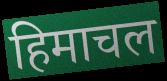
हिमाचल